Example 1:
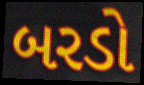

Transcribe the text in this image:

બરડો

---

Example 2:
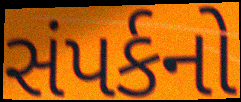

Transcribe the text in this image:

સંપર્કનો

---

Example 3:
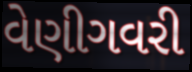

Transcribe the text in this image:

વેણીગવરી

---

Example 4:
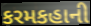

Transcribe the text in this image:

કરમકહાની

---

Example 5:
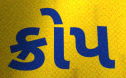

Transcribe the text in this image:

ક્રોપ